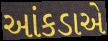
આંકડાએ